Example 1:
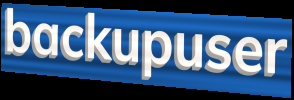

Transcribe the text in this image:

backupuser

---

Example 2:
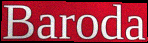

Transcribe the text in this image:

Baroda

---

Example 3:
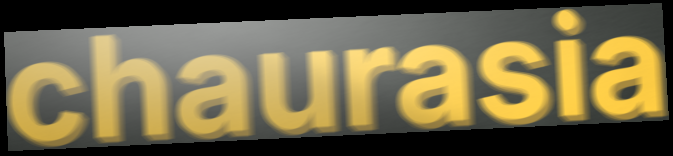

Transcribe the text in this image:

chaurasia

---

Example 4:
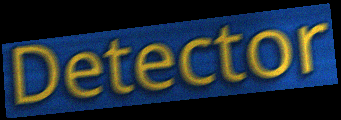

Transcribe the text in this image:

Detector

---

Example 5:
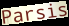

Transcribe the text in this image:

Parsis